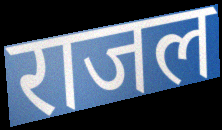
राजल